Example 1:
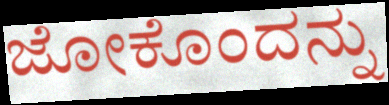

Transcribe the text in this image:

ಜೋಕೊಂದನ್ನು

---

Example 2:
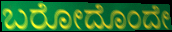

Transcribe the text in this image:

ಬರೋದೊಂದೇ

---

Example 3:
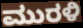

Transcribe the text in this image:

ಮುರಳಿ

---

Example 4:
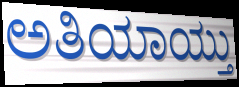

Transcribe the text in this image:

ಅತಿಯಾಯ್ತು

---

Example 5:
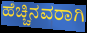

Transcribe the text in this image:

ಹೆಚ್ಚಿನವರಾಗಿ